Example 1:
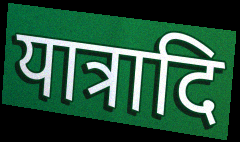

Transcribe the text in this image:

यात्रादि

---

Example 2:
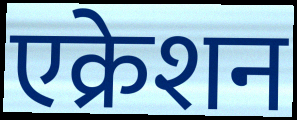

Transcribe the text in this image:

एक्रेशन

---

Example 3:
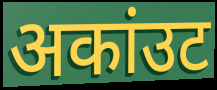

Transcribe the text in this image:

अकांउट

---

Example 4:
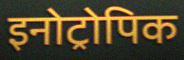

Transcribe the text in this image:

इनोट्रोपिक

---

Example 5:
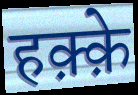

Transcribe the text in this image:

हक़्क़े